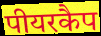
पीयरकैप